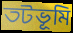
তটভূমি